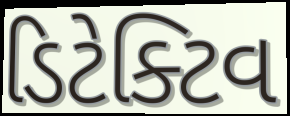
ડિટેક્ટિવ